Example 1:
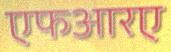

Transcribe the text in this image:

एफआरए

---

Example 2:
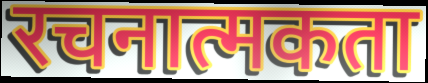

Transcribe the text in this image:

रचनात्मकता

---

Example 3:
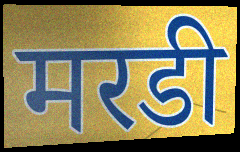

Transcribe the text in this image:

मरडी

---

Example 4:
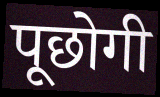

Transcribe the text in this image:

पूछोगी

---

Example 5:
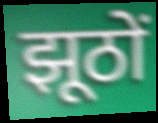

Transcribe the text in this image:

झूठों